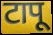
टापू